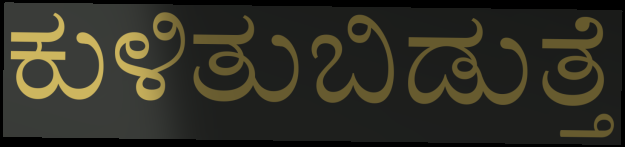
ಕುಳಿತುಬಿಡುತ್ತೆ